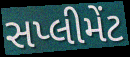
સપ્લીમેંટ